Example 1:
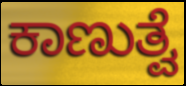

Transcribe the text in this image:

ಕಾಣುತ್ವೆ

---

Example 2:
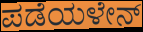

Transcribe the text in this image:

ಪಡೆಯಳೇನ್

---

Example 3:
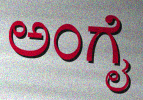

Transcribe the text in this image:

ಅಂಗೈ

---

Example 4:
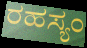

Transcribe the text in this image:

ರಹಸ್ಯಂ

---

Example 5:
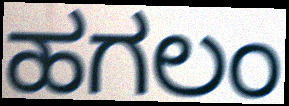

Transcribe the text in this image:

ಹಗಲಂ